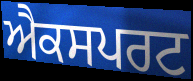
ਐਕਸਪਰਟ